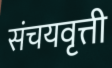
संचयवृत्ती